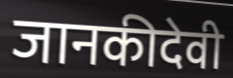
जानकीदेवी